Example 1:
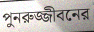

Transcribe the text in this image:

পুনরুজ্জীবনের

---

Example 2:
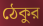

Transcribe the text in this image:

ঠেকুর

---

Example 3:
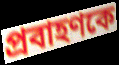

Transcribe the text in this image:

প্রবাহণকে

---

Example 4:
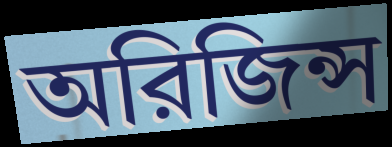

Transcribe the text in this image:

অরিজিন্স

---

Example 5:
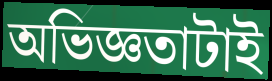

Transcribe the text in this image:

অভিজ্ঞতাটাই